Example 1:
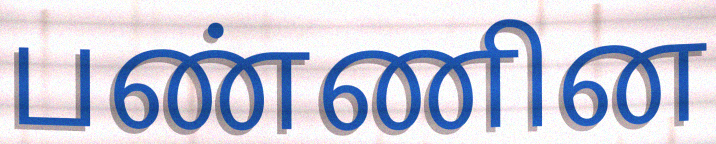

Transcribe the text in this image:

பண்ணின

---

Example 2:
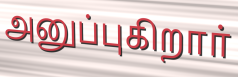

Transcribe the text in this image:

அனுப்புகிறார்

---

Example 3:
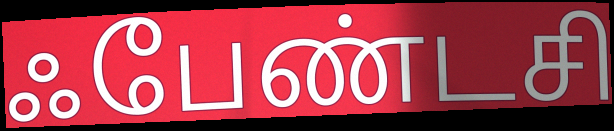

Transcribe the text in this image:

ஃபேண்டசி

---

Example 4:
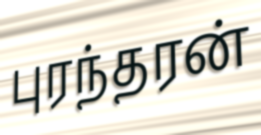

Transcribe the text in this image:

புரந்தரன்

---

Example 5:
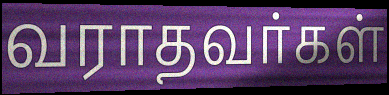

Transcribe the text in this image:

வராதவர்கள்